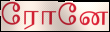
ரோனே